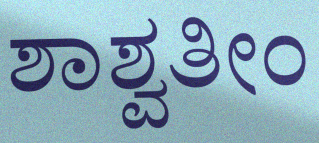
ಶಾಶ್ವತೀಂ